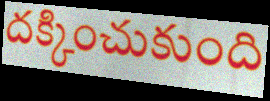
దక్కించుకుంది